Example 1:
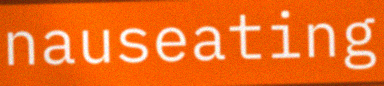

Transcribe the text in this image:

nauseating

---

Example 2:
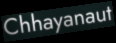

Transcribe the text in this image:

Chhayanaut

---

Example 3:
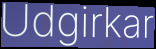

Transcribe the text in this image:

Udgirkar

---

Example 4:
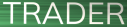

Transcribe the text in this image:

TRADER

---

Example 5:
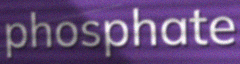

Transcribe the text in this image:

phosphate